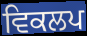
ਵਿਕਲਪ